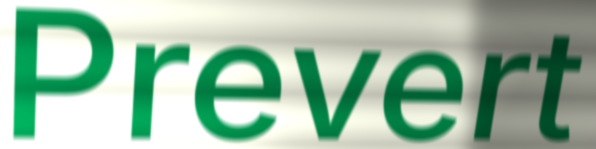
Prevert